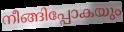
നീങ്ങിപ്പോകയും